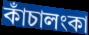
কাঁচালংকা